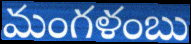
మంగళంబు